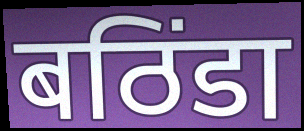
बठिंडा